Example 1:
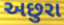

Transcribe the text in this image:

અછુરા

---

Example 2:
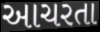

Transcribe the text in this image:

આચરતા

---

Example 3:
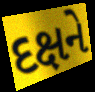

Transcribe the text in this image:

દક્ષને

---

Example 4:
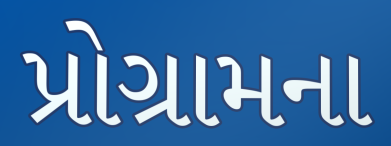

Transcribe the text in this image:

પ્રોગ્રામના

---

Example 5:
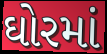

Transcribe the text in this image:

ઘોરમાં